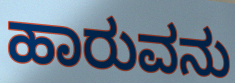
ಹಾರುವನು